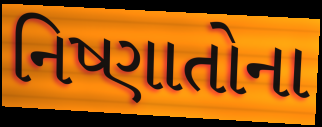
નિષ્ણાતોના